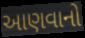
આણવાનો